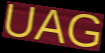
UAG